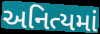
અનિત્યમાં